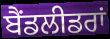
ਬੈਂਡਲੀਡਰਾਂ